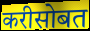
करीसोबत